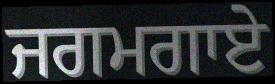
ਜਗਮਗਾਏ